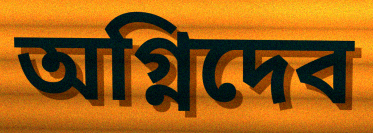
অগ্নিদেব